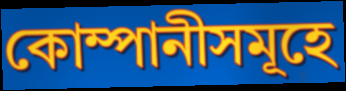
কোম্পানীসমূহে